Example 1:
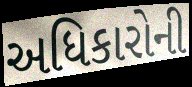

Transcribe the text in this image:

અધિકારોની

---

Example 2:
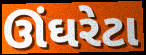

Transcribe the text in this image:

ઊંઘરેટા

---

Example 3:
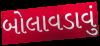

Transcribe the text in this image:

બોલાવડાવું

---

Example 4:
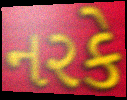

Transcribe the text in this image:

નરકે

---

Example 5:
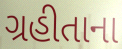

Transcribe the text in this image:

ગ્રહીતાના